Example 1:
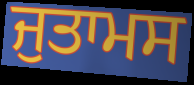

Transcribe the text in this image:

ਜੁਤਾਮਸ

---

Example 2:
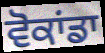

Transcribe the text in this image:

ਵੋਕਾਂਡਾ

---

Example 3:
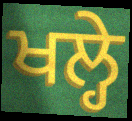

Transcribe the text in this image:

ਖਲ੍ਹੇ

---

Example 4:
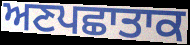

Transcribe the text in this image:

ਅਣਪਛਾਤਾਕ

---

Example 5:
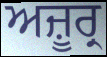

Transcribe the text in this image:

ਅਜ਼ੂਰ੍ਰ